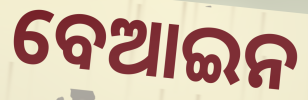
ବେଆଇନ